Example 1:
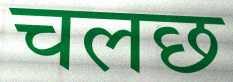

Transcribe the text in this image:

चलछ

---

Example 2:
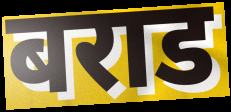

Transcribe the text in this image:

बराड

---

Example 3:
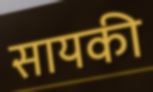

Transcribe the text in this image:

सायकी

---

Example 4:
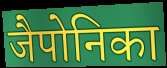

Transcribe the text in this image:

जैपोनिका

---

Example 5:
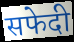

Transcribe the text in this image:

सफेदी